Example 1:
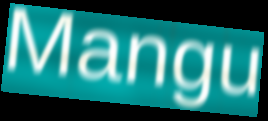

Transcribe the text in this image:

Mangu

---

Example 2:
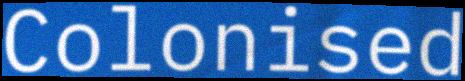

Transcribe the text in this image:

Colonised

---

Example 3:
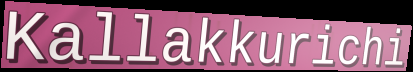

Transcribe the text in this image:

Kallakkurichi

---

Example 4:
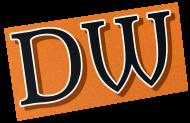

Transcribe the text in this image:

DW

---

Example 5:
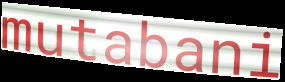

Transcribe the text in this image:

mutabani